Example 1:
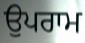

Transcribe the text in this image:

ਉਪਰਾਮ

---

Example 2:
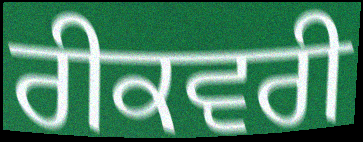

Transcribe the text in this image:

ਰੀਕਵਰੀ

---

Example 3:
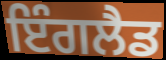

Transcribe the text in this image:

ਇੰਗਲੈਡ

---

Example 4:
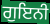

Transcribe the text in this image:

ਗੁਇਨੀ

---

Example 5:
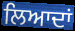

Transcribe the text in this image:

ਲਿਆਦਾਂ